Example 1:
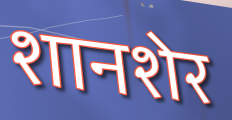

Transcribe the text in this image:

शानशेर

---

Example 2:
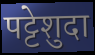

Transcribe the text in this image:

पट्टेशुदा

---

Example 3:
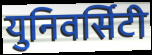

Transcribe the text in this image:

युनिवर्सिटी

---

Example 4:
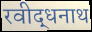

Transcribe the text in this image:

रवीद्धनाथ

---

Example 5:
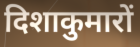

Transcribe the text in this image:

दिशाकुमारों